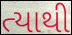
ત્યાથી